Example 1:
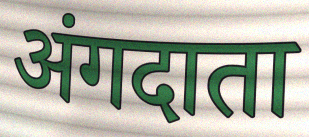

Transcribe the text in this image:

अंगदाता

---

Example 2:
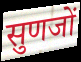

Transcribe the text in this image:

सुणजों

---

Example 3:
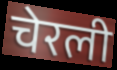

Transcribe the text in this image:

चेरली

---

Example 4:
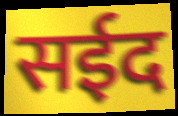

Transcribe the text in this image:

सईद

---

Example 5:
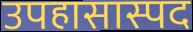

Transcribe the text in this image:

उपहासास्पद